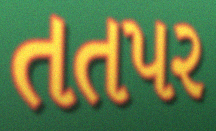
તતપર